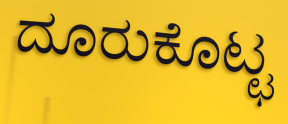
ದೂರುಕೊಟ್ಟ